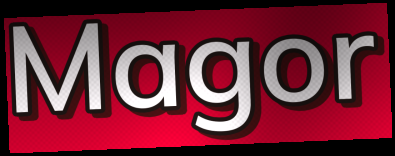
Magor